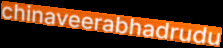
chinaveerabhadrudu